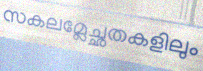
സകലമ്ലേച്ഛതകളിലും